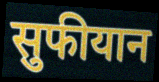
सुफीयान